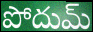
పోదుమ్